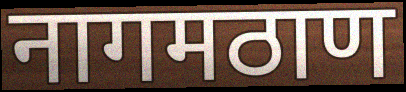
नागमठाण